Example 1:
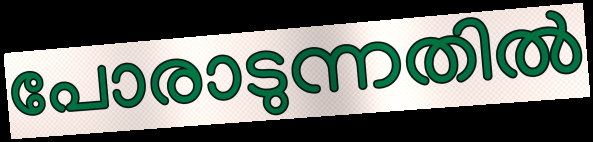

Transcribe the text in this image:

പോരാടുന്നതിൽ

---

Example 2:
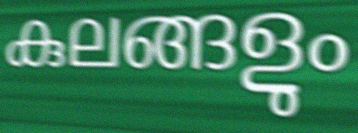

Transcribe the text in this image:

കുലങ്ങളും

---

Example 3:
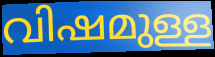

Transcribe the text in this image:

വിഷമുള്ള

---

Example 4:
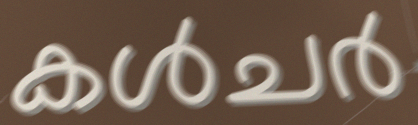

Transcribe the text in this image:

കൾചർ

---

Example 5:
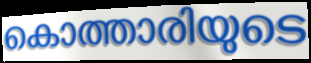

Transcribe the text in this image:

കൊത്താരിയുടെ